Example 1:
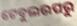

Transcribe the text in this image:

ଟେବୁଲଉପରୁ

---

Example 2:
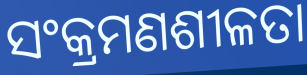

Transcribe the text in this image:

ସଂକ୍ରମଣଶୀଳତା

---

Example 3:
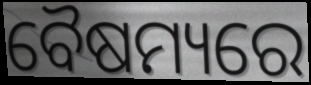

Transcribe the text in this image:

ବୈଷମ୍ୟରେ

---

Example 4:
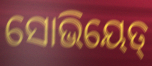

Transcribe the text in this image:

ସୋଭିୟେତ୍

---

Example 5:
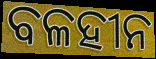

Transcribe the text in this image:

ବଳହୀନ